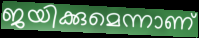
ജയിക്കുമെന്നാണ്